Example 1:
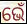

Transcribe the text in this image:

ଭେଁ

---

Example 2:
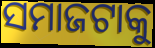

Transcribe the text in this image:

ସମାଜଟାକୁ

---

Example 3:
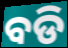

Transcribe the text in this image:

ବଡି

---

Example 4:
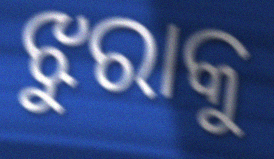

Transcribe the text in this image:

ଝୁରାକୁ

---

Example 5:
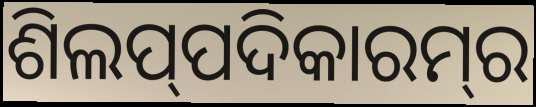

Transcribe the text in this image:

ଶିଲପ୍‍ପଦିକାରମ୍‍ର